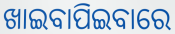
ଖାଇବାପିଇବାରେ